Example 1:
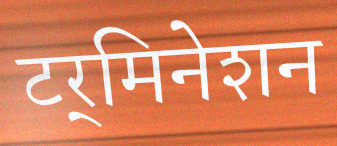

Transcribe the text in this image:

टर्मिनेशन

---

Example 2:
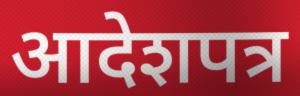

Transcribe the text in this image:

आदेशपत्र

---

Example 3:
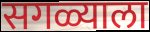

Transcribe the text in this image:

सगळ्याला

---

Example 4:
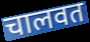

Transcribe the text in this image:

चालवत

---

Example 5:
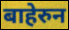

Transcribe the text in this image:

बाहेरुन